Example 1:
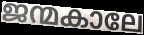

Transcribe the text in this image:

ജന്മകാലേ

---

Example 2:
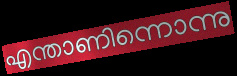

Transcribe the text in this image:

എന്താണിന്നൊന്നു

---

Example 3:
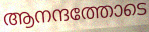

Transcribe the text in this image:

ആനന്ദത്തോടെ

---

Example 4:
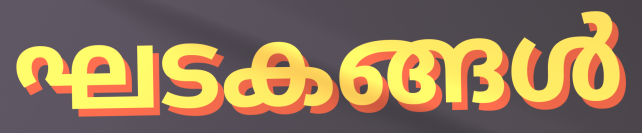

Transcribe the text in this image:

ഘടകങ്ങൾ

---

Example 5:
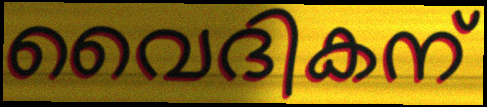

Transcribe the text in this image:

വൈദികന്